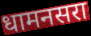
धामनसरा